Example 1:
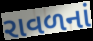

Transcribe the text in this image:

રાવળનાં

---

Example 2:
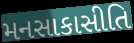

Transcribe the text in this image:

મનસાકાસીતિ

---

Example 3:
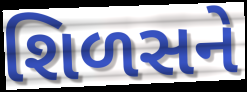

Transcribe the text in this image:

શિળસને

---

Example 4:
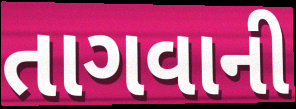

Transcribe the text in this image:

તાગવાની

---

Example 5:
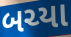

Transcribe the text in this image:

બચ્યા